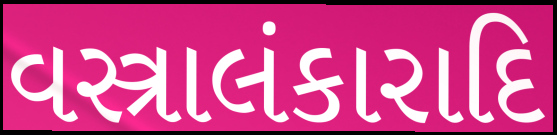
વસ્ત્રાલંકારાદિ